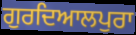
ਗੁਰਦਿਆਲਪੁਰਾ